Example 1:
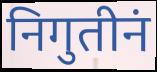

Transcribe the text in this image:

निगुतीनं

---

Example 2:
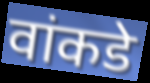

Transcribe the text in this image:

वांकडे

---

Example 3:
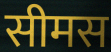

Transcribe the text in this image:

सीमस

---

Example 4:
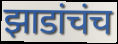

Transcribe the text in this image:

झाडांचंच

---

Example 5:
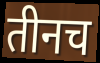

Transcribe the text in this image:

तीनच